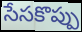
సేసకొప్పు